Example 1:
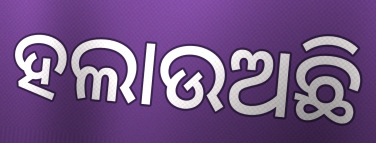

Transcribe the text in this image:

ହଲାଉଅଛି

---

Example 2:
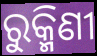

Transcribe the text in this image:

ରୁକ୍ମିଣୀ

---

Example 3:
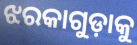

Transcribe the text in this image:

ଝରକାଗୁଡ଼ାକୁ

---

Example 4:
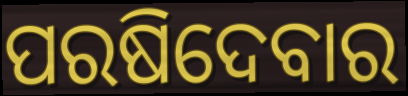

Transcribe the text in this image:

ପରଷିଦେବାର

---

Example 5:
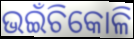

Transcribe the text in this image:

ଭଇଁଚିକୋଳି